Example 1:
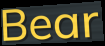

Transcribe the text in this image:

Bear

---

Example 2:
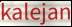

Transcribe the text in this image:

kalejan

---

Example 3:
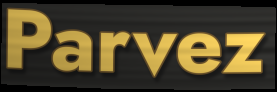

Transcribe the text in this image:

Parvez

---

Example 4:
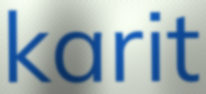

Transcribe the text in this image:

karit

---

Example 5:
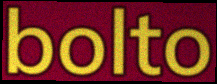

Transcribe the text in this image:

bolto